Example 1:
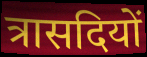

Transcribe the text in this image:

त्रासदियों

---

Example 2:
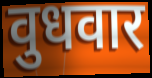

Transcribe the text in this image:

वुधवार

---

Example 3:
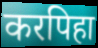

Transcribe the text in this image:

करपिहा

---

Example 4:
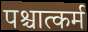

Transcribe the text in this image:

पश्चात्कर्म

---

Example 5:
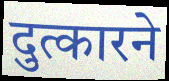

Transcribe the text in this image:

दुत्कारने